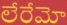
లేరేమో